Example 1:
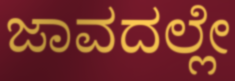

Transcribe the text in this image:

ಜಾವದಲ್ಲೇ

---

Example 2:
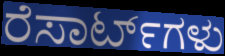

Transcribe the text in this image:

ರೆಸಾರ್ಟ್‌ಗಳು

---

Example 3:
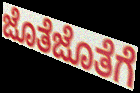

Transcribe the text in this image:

ಜೊತೆಜೊತೆಗೆ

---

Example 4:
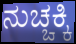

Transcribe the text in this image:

ನುಚ್ಚಕ್ಕಿ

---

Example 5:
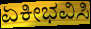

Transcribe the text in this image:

ಏಕೀಭವಿಸಿ